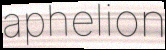
aphelion